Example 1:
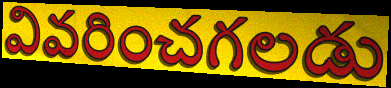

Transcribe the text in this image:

వివరించగలడు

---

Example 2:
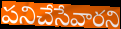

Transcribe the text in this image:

పనిచేసేవారని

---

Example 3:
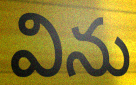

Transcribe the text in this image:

విను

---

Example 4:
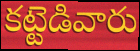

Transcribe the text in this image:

కట్టెడివారు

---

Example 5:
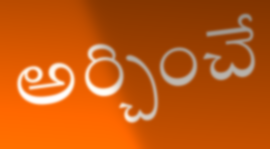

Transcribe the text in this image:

అర్చించే